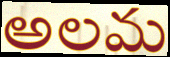
అలమ